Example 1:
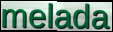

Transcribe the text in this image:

melada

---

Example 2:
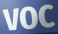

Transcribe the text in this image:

VOC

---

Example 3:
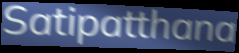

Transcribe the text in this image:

Satipatthana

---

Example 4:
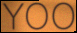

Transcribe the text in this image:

YOO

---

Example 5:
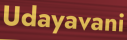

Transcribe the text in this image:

Udayavani